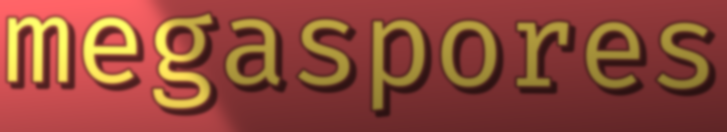
megaspores